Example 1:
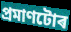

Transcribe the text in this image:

প্ৰমাণটোৰ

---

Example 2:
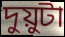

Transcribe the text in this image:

দুয়ুটা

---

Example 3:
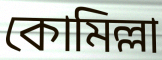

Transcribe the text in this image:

কোমিল্লা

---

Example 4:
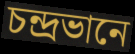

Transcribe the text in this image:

চন্দ্ৰভানে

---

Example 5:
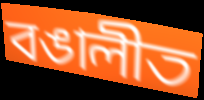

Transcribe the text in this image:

বঙালীত